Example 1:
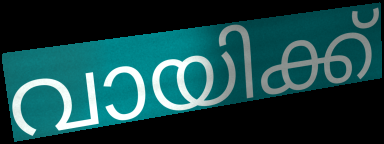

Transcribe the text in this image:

വായിക്ക്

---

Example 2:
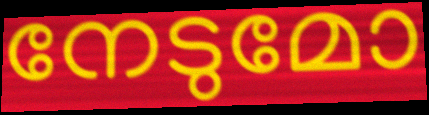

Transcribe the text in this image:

നേടുമോ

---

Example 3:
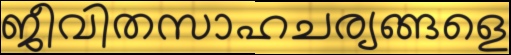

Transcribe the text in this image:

ജീവിതസാഹചര്യങ്ങളെ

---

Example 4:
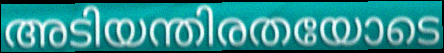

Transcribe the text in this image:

അടിയന്തിരതയോടെ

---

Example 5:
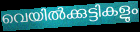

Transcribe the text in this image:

വെയിൽക്കുട്ടികളും